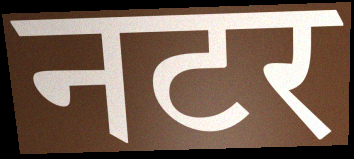
नटर